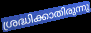
ശ്രദ്ധിക്കാതിരുന്നു